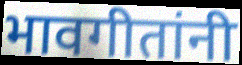
भावगीतांनी